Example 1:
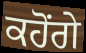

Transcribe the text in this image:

ਕਹੋਂਗੇ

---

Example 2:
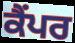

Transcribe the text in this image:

ਕੈਂਪਰ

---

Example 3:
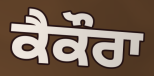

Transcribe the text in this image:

ਕੈਕੌਰਾ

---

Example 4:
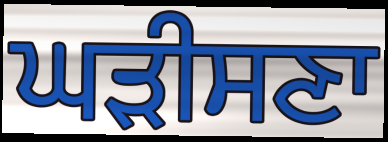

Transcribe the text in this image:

ਘੜੀਸਣਾ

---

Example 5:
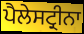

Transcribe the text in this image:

ਪੈਲੇਸਟ੍ਰੀਨਾ